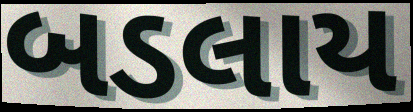
બડલાય